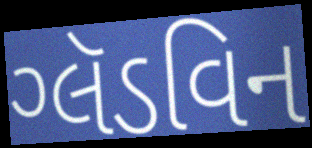
ગ્લૅડવિન